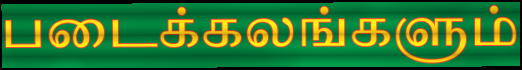
படைக்கலங்களும்